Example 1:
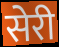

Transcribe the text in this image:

सेरी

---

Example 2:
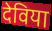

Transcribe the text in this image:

देविया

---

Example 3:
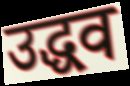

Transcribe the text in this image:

उद्धव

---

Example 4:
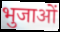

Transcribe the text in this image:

भुजाओं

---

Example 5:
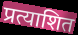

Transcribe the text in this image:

प्रत्याशित